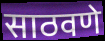
साठवणे